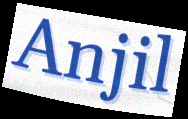
Anjil